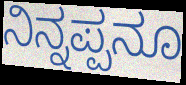
ನಿನ್ನಪ್ಪನೂ